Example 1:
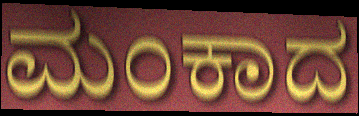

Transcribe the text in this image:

ಮಂಕಾದ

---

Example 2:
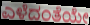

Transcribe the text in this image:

ಎಳೆದಂತೆಯೇ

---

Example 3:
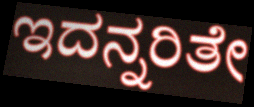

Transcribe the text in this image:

ಇದನ್ನರಿತೇ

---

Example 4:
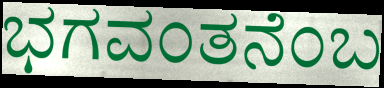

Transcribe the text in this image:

ಭಗವಂತನೆಂಬ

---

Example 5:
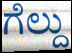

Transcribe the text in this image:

ಗೆಲ್ದು